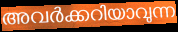
അവർക്കറിയാവുന്ന